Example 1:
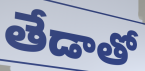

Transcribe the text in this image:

తేడాతో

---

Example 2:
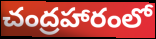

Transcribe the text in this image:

చంద్రహారంలో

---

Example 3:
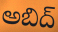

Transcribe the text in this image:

అబిద్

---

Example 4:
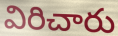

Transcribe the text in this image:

విరిచారు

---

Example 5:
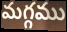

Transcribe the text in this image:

మగ్గము